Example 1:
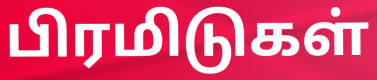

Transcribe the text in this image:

பிரமிடுகள்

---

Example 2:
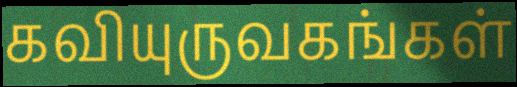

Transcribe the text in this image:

கவியுருவகங்கள்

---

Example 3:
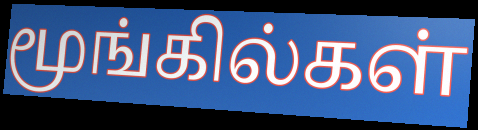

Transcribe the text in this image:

மூங்கில்கள்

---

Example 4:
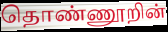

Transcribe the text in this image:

தொண்ணூறின்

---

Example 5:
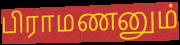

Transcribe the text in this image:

பிராமணனும்